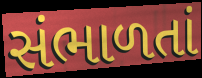
સંભાળતાં